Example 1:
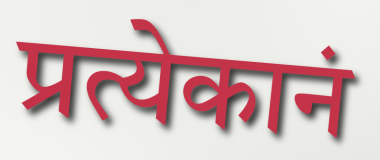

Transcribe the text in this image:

प्रत्येकानं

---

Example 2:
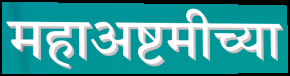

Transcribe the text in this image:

महाअष्टमीच्या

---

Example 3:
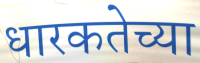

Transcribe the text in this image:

धारकतेच्या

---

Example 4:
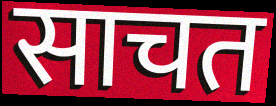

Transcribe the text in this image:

साचत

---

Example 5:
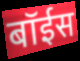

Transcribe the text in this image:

बॉईस